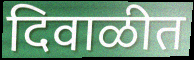
दिवाळीत